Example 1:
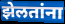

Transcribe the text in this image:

झेलतांना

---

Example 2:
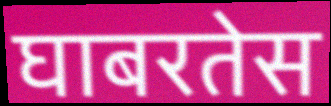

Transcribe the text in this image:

घाबरतेस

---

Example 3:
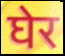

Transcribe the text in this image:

घेर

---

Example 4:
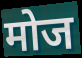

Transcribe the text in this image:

मोज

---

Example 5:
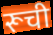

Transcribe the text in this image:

रूची